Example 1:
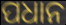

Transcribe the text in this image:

ପଧାନ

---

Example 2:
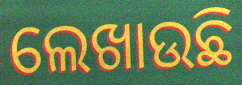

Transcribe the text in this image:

ଲେଖାଉଛି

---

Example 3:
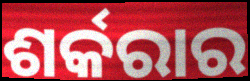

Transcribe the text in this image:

ଶର୍କରାର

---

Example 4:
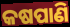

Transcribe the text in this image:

କଷପାଣି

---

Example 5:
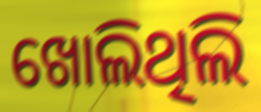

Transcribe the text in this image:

ଖୋଲିଥିଲି